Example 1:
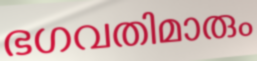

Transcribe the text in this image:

ഭഗവതിമാരും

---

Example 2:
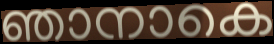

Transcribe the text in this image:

ഞാനാകെ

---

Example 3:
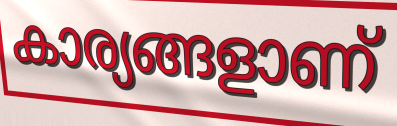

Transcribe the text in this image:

കാര്യങ്ങളാണ്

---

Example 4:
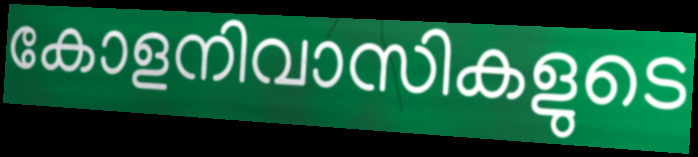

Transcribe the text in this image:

കോളനിവാസികളുടെ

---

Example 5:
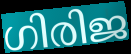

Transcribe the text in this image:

ഗിരിജ